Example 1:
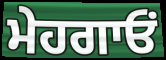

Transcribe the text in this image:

ਮੇਹਗਾਓਂ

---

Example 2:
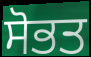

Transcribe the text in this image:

ਸੋਭਤ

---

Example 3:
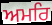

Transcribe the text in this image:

ਅਮਰਿ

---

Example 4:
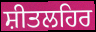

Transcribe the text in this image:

ਸ਼ੀਤਲਹਿਰ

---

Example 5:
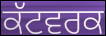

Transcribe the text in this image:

ਕੱਟਵਰਕ